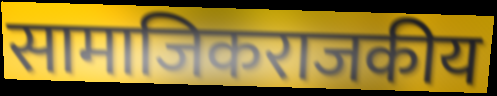
सामाजिकराजकीय